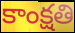
కాంక్షతి